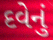
દવેનું